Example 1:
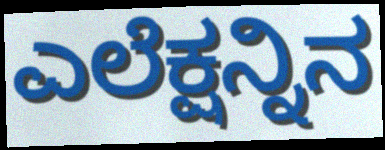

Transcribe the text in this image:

ಎಲೆಕ್ಷನ್ನಿನ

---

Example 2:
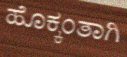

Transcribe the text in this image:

ಹೊಕ್ಕಂತಾಗಿ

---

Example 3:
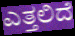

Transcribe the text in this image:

ಎತ್ತಲಿದೆ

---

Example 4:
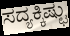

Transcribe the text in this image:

ಸದ್ಯಕ್ಕಿಷ್ಟು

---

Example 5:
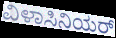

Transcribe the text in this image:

ವಿಳಾಸಿನಿಯರ್